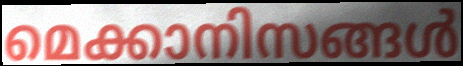
മെക്കാനിസങ്ങൾ